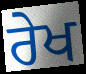
ਰੇਖ